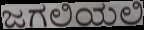
ಜಗಲಿಯಲಿ